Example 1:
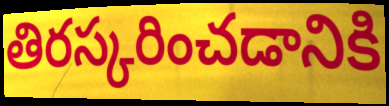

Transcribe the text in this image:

తిరస్కరించడానికి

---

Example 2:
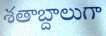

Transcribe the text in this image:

శతాబ్దాలుగా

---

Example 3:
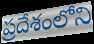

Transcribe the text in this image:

ప్రదేశంలోని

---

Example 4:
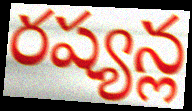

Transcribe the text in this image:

రష్యన్ల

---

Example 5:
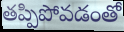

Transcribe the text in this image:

తప్పిపోవడంతో